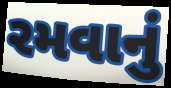
રમવાનું